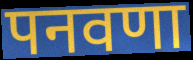
पनवणा